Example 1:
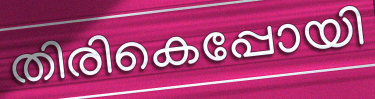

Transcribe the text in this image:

തിരികെപ്പോയി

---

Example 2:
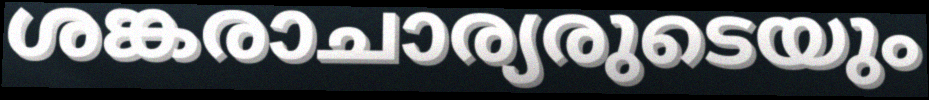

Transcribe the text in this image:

ശങ്കരാചാര്യരുടെയും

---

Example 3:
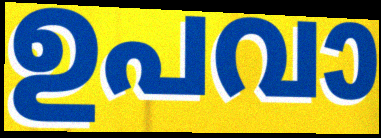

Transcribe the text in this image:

ഉപവാ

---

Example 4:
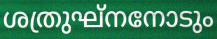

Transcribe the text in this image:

ശത്രുഘ്നനോടും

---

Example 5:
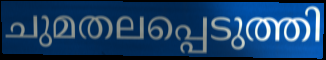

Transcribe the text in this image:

ചുമതലപ്പെടുത്തി